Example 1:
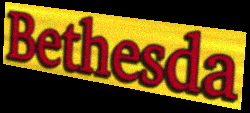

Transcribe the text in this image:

Bethesda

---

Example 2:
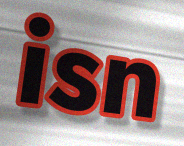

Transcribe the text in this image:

isn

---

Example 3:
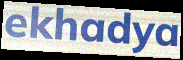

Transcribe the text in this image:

ekhadya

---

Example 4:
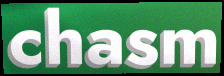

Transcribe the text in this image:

chasm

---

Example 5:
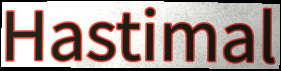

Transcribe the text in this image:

Hastimal